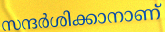
സന്ദർശിക്കാനാണ്